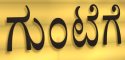
ಗುಂಟೆಗೆ